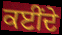
ਕਈਂਦੇ